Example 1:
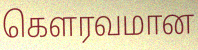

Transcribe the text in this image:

கெளரவமான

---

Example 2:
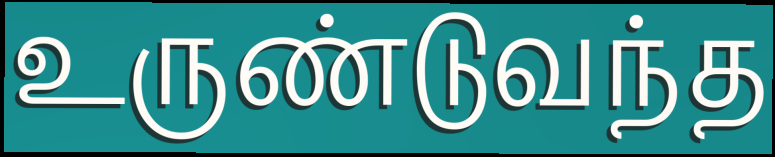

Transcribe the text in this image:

உருண்டுவந்த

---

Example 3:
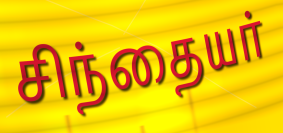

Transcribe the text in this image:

சிந்தையர்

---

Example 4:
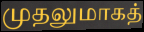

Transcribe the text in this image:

முதலுமாகத்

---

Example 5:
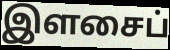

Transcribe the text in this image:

இளசைப்